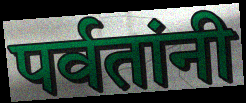
पर्वतांनी